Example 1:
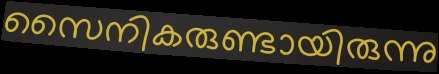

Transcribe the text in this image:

സൈനികരുണ്ടായിരുന്നു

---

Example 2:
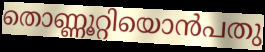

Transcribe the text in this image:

തൊണ്ണൂറ്റിയൊൻപതു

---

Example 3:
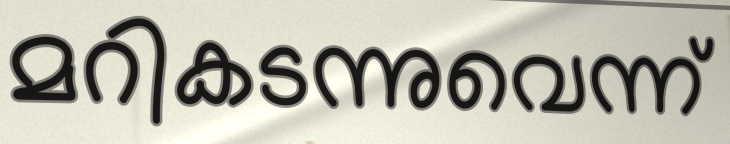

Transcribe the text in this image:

മറികടന്നുവെന്ന്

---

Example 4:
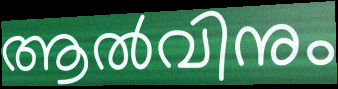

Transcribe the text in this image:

ആൽവിനും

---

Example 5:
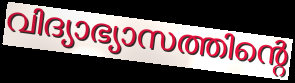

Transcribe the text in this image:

വിദ്യാഭ്യാസത്തിന്റെ